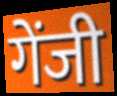
गेंजी